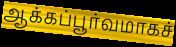
ஆக்கப்பூர்வமாகச்